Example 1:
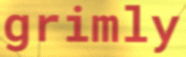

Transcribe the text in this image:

grimly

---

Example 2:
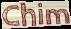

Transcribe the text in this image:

Chim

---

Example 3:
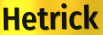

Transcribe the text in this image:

Hetrick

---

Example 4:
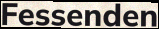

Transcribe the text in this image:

Fessenden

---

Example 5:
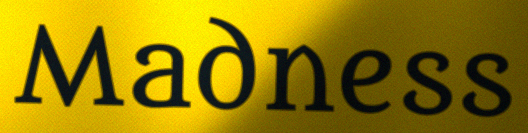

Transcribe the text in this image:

Madness